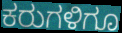
ಕರುಗಳಿಗೂ